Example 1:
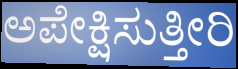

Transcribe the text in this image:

ಅಪೇಕ್ಷಿಸುತ್ತೀರಿ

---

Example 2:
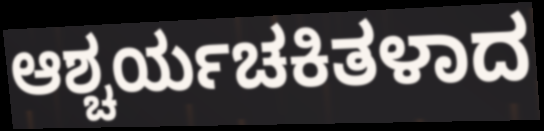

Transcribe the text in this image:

ಆಶ್ಚರ್ಯಚಕಿತಳಾದ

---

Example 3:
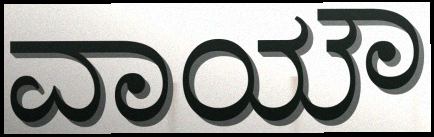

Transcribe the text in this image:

ವಾಯೌ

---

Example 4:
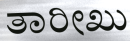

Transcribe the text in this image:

ತಾರೀಖು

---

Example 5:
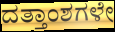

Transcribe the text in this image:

ದತ್ತಾಂಶಗಳೇ